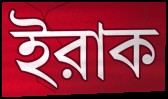
ইরাক